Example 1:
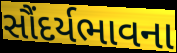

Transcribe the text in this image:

સૌંદર્યભાવના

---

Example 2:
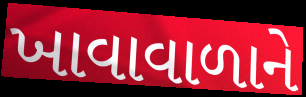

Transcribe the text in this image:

ખાવાવાળાને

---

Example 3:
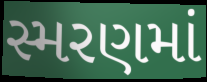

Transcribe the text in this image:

સ્મરણમાં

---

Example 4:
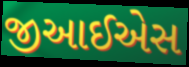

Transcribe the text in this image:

જીઆઈએસ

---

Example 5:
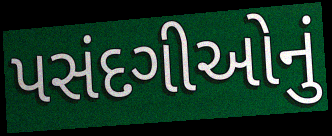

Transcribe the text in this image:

પસંદગીઓનું